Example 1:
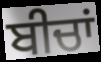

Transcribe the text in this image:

ਬੀਚਾਂ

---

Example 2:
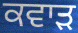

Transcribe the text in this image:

ਕਵਾੜ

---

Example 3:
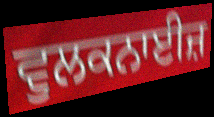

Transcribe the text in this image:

ਵੁਲਕਨਾਈਜ਼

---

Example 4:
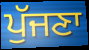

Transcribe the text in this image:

ਪੁੱਜਣਾ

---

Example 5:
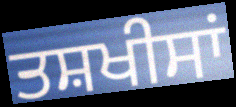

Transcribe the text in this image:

ਤਸ਼ਖੀਸਾਂ